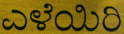
ಎಳೆಯಿರಿ